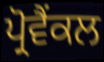
ਪ੍ਰੋਵੈਂਕਲ